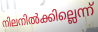
നിലനിൽക്കില്ലെന്ന്